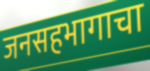
जनसहभागाचा